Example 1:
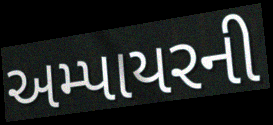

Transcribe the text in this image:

અમ્પાયરની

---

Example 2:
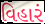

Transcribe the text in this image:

વિહારં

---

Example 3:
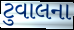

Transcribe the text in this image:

ટુવાલના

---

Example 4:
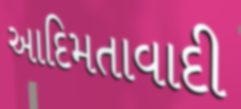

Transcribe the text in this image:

આદિમતાવાદી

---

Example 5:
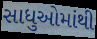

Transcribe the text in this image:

સાધુઓમાંથી